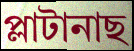
প্লাটানাছ